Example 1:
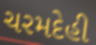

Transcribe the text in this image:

ચરમદેહી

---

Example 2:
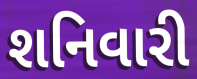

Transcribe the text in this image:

શનિવારી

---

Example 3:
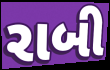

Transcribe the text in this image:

રાબી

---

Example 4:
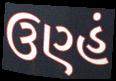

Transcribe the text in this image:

ઉણ્હં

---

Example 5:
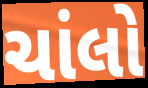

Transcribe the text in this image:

ચાંલો